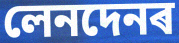
লেনদেনৰ